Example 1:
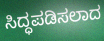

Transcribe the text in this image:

ಸಿದ್ಧಪಡಿಸಲಾದ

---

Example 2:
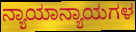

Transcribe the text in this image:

ನ್ಯಾಯಾನ್ಯಾಯಗಳ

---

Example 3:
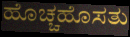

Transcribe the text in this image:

ಹೊಚ್ಚಹೊಸತು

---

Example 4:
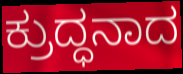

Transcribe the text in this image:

ಕ್ರುದ್ಧನಾದ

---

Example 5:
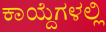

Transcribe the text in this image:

ಕಾಯ್ದೆಗಳಲ್ಲಿ